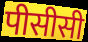
पीसीसी